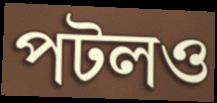
পটলও